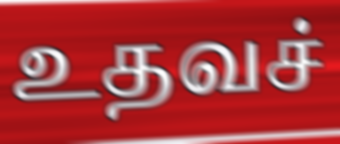
உதவச்